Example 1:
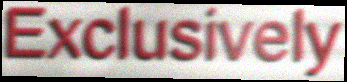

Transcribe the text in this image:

Exclusively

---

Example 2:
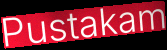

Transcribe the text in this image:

Pustakam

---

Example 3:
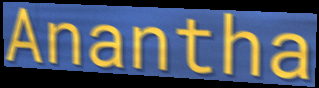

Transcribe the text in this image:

Anantha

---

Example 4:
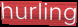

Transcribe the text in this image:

hurling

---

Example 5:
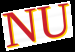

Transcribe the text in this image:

NU